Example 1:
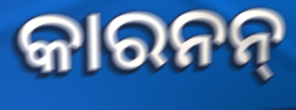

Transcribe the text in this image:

କାରନନ୍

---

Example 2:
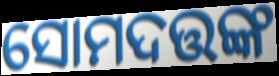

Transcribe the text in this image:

ସୋମଦତ୍ତଙ୍କ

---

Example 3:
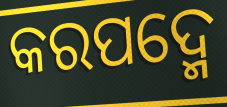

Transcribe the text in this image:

କରପଦ୍ମେ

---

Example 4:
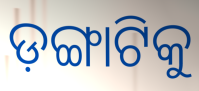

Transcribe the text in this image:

ଡ଼ଙ୍ଗାଟିକୁ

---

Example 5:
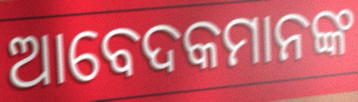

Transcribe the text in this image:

ଆବେଦକମାନଙ୍କ